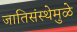
जातिसंस्थेमुळे